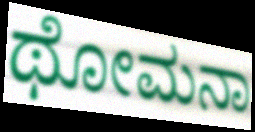
ಥೋಮನಾ